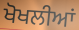
ਖੋਖਲੀਆਂ